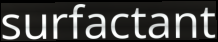
surfactant